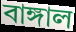
বাঙ্গাল